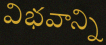
విభవాన్ని